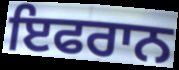
ਇਫਰਾਨ